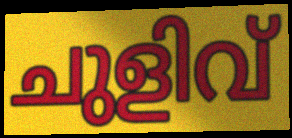
ചുളിവ്